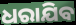
ଧରାଯିବ